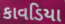
કાવડિયા